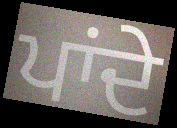
ਪਾਂਦੇ